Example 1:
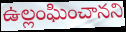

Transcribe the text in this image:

ఉల్లంఘించానని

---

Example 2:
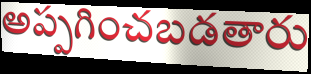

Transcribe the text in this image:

అప్పగించబడతారు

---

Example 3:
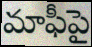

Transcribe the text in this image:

మాఫీపై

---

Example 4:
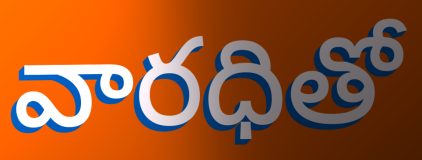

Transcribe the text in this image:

వారధితో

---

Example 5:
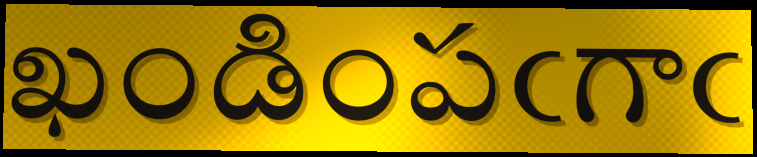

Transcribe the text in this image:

ఖండింపఁగాఁ